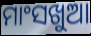
ମାଂସଖୁଆ